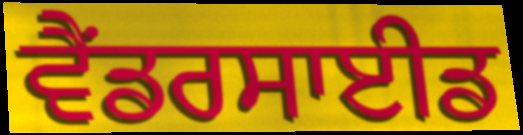
ਵੈਂਡਰਸਾਈਡ